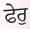
ਫੇਰੁ